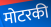
मोटरकी